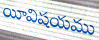
యీవిషయము